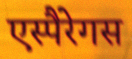
एस्पैरेगस